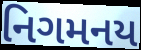
નિગમનય